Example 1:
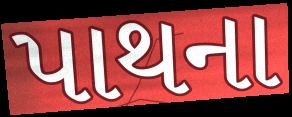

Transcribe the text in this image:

પાથના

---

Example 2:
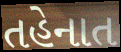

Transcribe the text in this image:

તહેનાત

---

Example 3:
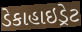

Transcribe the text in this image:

ડેકાહાઇડ્રેટ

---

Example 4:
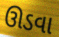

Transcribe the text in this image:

ઊડવા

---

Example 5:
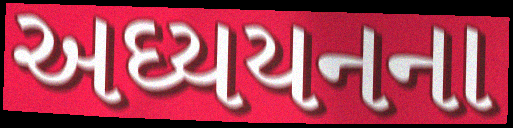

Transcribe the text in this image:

અઘ્યયનના